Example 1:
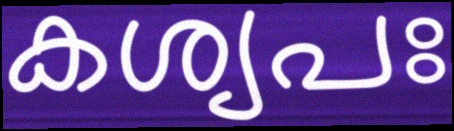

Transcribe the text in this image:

കശ്യപഃ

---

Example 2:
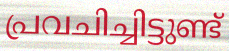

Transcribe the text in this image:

പ്രവചിച്ചിട്ടുണ്ട്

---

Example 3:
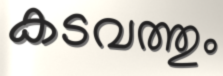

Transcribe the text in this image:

കടവത്തും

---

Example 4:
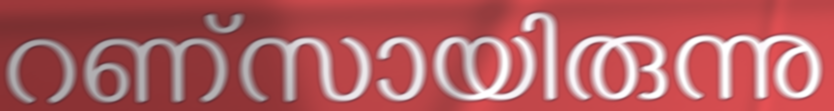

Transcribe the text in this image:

റണ്സായിരുന്നു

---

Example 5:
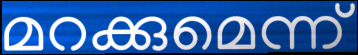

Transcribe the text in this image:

മറക്കുമെന്ന്